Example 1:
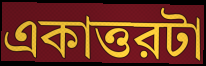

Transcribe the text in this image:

একাত্তরটা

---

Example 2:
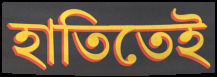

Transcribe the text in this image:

হাতিতেই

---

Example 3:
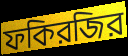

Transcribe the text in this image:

ফকিরজির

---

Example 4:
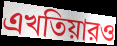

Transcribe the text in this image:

এখতিয়ারও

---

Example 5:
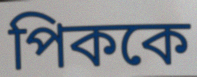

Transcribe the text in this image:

পিককে